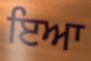
ਇਆ